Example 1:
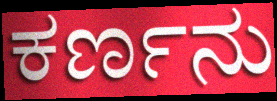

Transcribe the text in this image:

ಕರ್ಣನು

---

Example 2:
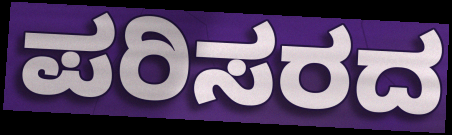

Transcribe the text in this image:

ಪರಿಸರದ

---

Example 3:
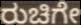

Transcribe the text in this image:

ರುಚಿಗೇ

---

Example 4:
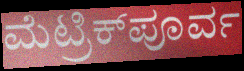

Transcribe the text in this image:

ಮೆಟ್ರಿಕ್‌ಪೂರ್ವ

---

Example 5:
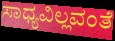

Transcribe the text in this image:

ಸಾಧ್ಯವಿಲ್ಲವಂತೆ